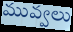
మువ్వలు